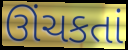
ઊંચકતાં